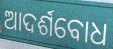
ଆଦର୍ଶବୋଧ